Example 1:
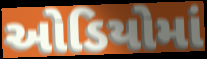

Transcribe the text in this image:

ઓડિયોમાં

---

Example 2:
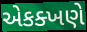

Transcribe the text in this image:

એકક્ખણે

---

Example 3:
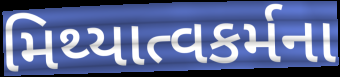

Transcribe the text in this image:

મિથ્યાત્વકર્મના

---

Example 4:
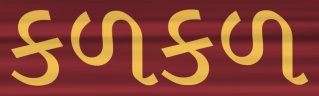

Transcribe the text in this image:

કળકળ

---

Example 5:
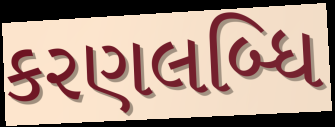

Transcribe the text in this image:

કરણલબ્ધિ